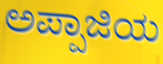
ಅಪ್ಪಾಜಿಯ